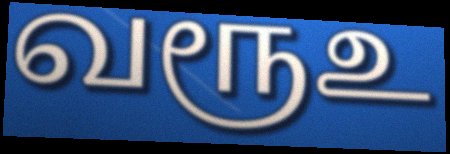
வரூஉ